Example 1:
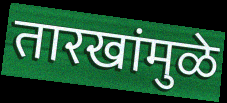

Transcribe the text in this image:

तारखांमुळे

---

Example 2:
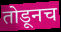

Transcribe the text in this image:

तोडूनच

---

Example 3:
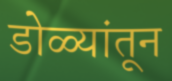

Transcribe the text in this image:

डोळ्यांतून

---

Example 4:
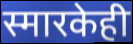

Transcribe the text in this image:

स्मारकेही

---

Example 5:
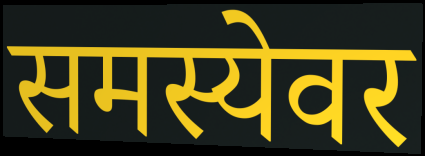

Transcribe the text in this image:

समस्येवर